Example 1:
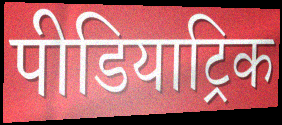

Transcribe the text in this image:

पीडियाट्रिक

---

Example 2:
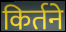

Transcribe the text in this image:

किर्तने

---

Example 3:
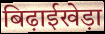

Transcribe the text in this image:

बिढ़ाईखेड़ा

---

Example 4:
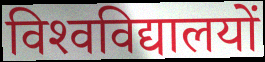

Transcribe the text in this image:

विश्‍वविद्यालयों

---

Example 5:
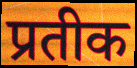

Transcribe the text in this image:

प्रतीक